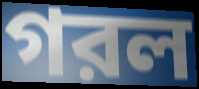
গরল